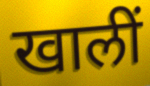
खालीं